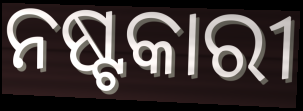
ନଷ୍ଟକାରୀ